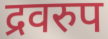
द्रवरुप